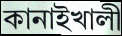
কানাইখালী